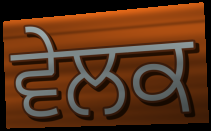
ਵੇਲਕ